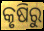
କୃଷିରୁ